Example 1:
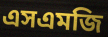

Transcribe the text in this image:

এসএমজি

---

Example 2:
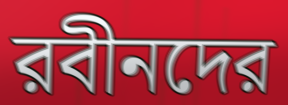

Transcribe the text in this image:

রবীনদের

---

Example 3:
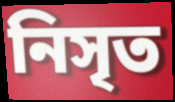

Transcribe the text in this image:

নিসৃত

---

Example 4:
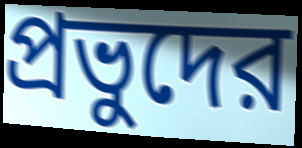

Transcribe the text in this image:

প্রভুদের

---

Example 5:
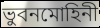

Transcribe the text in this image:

ভুবনমোহিনী